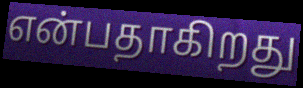
என்பதாகிறது